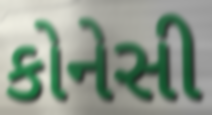
કોનેસી